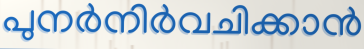
പുനർനിർവചിക്കാൻ